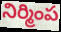
నిర్మింప